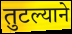
तुटल्याने